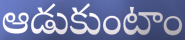
ఆడుకుంటాం